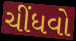
ચીંધવો